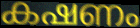
കഷണം